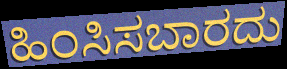
ಹಿಂಸಿಸಬಾರದು